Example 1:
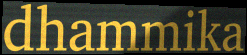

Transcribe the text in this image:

dhammika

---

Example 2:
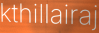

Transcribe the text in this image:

kthillairaj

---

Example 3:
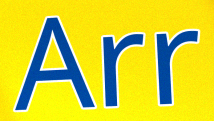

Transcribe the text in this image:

Arr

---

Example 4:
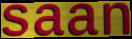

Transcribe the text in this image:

saan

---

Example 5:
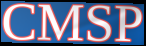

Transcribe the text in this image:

CMSP